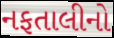
નફતાલીનો